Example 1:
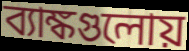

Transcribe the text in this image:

ব্যাঙ্কগুলোয়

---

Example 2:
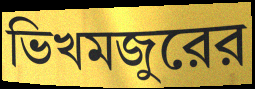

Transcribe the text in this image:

ভিখমজুরের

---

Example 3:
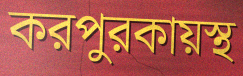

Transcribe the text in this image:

করপুরকায়স্থ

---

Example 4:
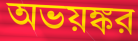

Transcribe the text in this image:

অভয়ঙ্কর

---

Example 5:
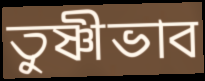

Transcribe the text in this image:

তুষ্ণীভাব